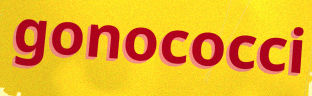
gonococci